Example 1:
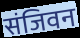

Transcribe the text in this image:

संजिवन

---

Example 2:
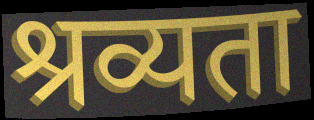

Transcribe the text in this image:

श्रव्यता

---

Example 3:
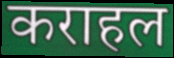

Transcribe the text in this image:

कराहल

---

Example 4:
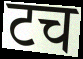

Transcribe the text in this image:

टच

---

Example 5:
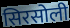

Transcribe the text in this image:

सिरसोली